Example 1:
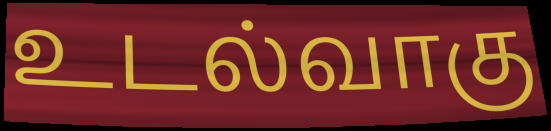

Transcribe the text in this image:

உடல்வாகு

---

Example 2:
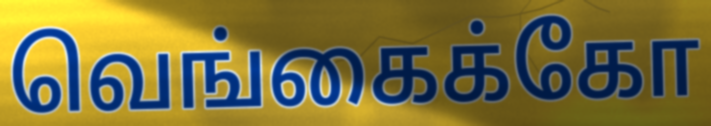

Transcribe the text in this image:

வெங்கைக்கோ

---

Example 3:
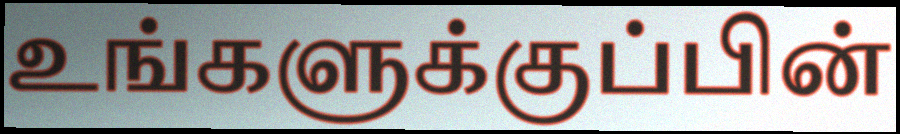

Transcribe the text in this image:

உங்களுக்குப்பின்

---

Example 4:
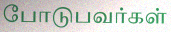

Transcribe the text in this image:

போடுபவர்கள்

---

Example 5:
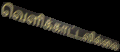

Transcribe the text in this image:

வெளிக்காட்டவில்லை